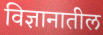
विज्ञानातील